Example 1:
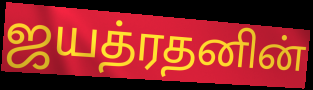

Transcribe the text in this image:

ஜயத்ரதனின்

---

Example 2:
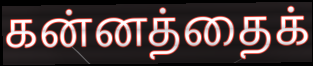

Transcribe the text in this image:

கன்னத்தைக்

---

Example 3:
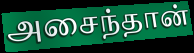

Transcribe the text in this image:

அசைந்தான்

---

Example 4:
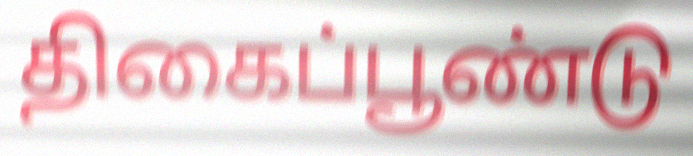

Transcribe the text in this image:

திகைப்பூண்டு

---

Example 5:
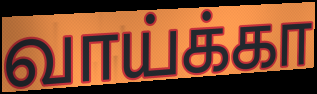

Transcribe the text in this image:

வாய்க்கா